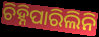
ଚିହ୍ନିପାରିଲିନି